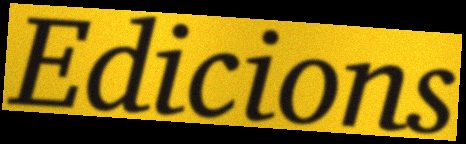
Edicions